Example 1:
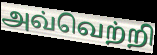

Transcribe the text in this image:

அவ்வெற்றி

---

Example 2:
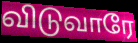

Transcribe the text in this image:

விடுவாரே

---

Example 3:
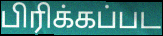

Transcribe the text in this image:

பிரிக்கப்பட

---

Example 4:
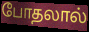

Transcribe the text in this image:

போதலால்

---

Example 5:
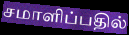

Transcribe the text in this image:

சமாளிப்பதில்